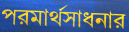
পরমার্থসাধনার